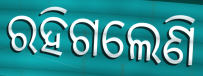
ରହିଗଲେଣି